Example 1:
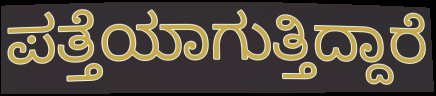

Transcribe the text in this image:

ಪತ್ತೆಯಾಗುತ್ತಿದ್ದಾರೆ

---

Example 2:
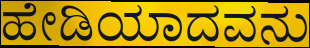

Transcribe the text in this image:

ಹೇಡಿಯಾದವನು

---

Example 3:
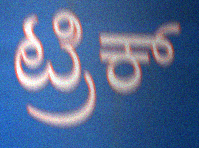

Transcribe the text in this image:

ಟ್ರಿಕ್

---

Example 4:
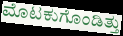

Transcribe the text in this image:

ಮೊಟಕುಗೊಂಡಿತ್ತು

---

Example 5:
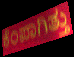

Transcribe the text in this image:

ಕೆಂಪಾಗಿತ್ತು